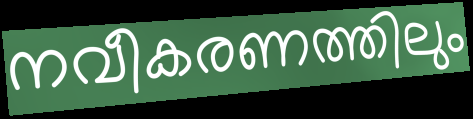
നവീകരണത്തിലും